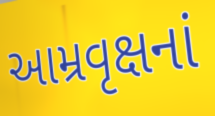
આમ્રવૃક્ષનાં